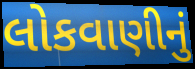
લોકવાણીનું